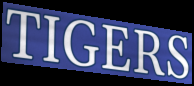
TIGERS